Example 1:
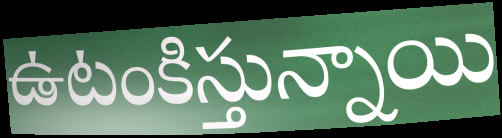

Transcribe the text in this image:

ఉటంకిస్తున్నాయి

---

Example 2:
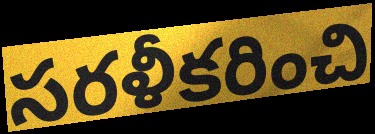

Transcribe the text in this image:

సరళీకరించి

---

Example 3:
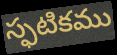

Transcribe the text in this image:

స్ఫటికము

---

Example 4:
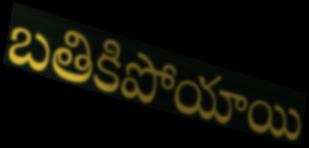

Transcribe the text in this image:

బతికిపోయాయి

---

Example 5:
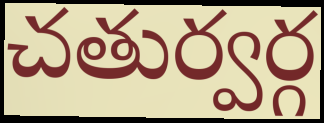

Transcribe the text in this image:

చతుర్వర్గ